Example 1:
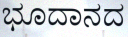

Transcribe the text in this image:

ಭೂದಾನದ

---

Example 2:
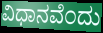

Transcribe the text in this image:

ವಿಧಾನವೆಂದು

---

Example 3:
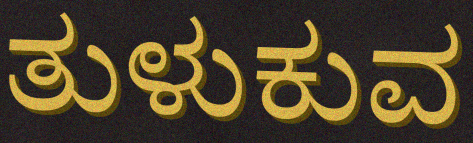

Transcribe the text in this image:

ತುಳುಕುವ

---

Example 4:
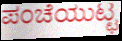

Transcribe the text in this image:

ಪಂಚೆಯುಟ್ಟ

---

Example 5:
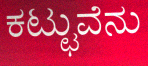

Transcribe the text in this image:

ಕಟ್ಟುವೆನು